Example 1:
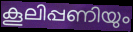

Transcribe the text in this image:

കൂലിപ്പണിയും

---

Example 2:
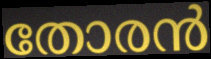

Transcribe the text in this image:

തോരൻ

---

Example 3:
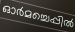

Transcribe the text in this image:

ഓർമച്ചെപ്പിൽ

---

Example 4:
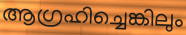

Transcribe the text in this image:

ആഗ്രഹിച്ചെങ്കിലും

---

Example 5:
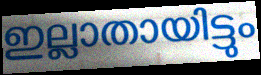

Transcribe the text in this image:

ഇല്ലാതായിട്ടും